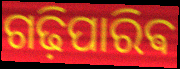
ଗଢ଼ିପାରିଵ